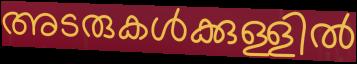
അടരുകൾക്കുള്ളിൽ